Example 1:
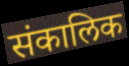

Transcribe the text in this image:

संकालिक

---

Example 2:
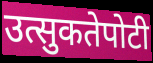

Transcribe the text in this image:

उत्सुकतेपोटी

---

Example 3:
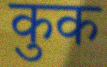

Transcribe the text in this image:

कुक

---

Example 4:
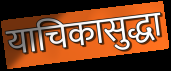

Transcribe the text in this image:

याचिकासुद्धा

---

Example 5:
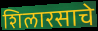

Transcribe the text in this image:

शिलारसाचे